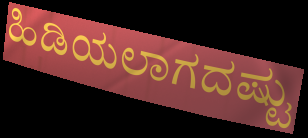
ಹಿಡಿಯಲಾಗದಷ್ಟು